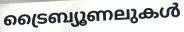
ട്രൈബ്യൂണലുകൾ